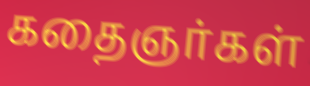
கதைஞர்கள்